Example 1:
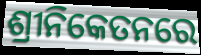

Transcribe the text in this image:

ଶ୍ରୀନିକେତନରେ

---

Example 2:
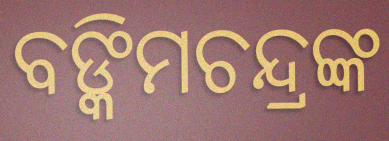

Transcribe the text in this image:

ବଙ୍କିମଚନ୍ଦ୍ରଙ୍କ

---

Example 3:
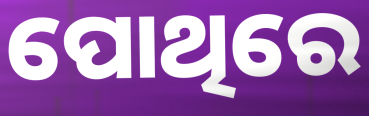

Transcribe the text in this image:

ପୋଥିରେ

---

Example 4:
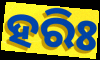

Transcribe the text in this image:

ହରିଃ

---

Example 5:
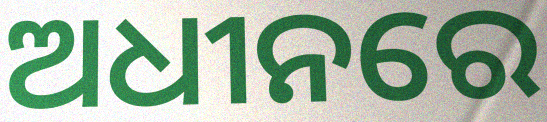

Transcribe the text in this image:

ଅଧୀନରେ